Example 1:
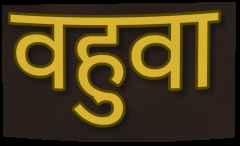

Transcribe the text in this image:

वहुवा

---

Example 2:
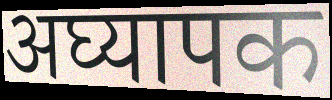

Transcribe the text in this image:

अघ्यापक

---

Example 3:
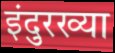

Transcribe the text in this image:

इंदुरख्या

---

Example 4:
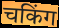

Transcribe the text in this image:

चकिंग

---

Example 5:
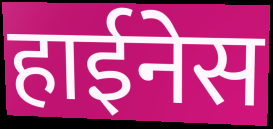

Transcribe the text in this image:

हाईनेस